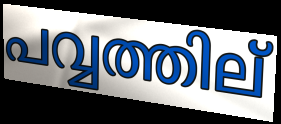
പവ്വത്തില്